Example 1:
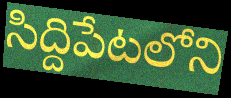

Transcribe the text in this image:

సిద్దిపేటలోని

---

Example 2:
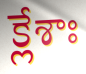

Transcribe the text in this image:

క్లేశాః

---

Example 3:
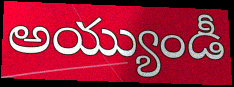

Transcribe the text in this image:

అయ్యుండీ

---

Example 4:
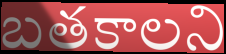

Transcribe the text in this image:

బతకాలని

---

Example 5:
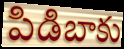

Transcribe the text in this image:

పిడిబాకు